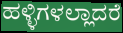
ಹಳ್ಳಿಗಳಲ್ಲಾದರೆ